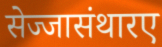
सेज्जासंथारए